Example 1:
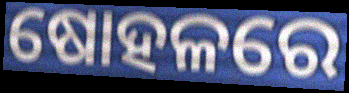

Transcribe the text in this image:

ଷୋହଳରେ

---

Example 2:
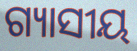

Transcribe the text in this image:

ଗ୍ୟାସୀୟ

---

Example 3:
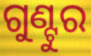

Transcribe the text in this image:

ଗୁଣ୍ଟୁର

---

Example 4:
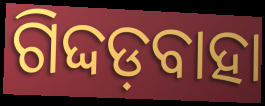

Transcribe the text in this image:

ଗିଦ୍ଦଡ଼ବାହା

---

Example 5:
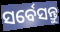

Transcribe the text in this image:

ସର୍ବେସନ୍ତୁ